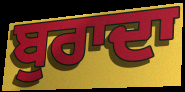
ਬੁਰਾਦਾ